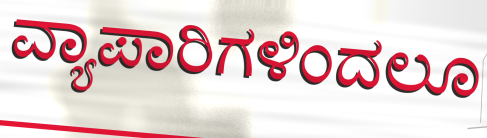
ವ್ಯಾಪಾರಿಗಳಿಂದಲೂ